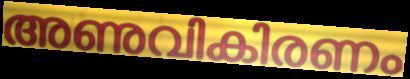
അണുവികിരണം